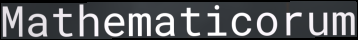
Mathematicorum